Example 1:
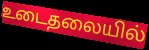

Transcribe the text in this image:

உடைதலையில்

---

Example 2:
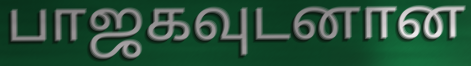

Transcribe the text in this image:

பாஜகவுடனான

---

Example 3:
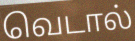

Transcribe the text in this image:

வெடால்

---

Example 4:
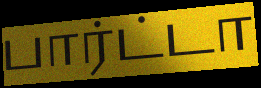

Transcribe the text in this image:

பார்ட்டா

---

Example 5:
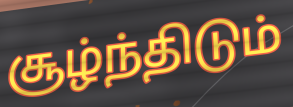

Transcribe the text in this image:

சூழ்ந்திடும்